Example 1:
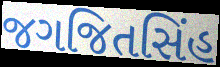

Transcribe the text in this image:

જગજિતસિંહ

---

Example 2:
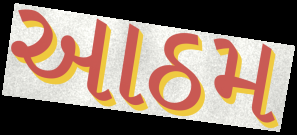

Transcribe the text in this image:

આઠમ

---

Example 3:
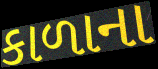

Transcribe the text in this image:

કાળાના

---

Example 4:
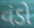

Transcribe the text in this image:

વંડો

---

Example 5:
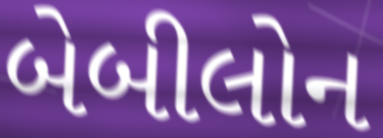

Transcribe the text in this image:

બેબીલોન